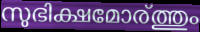
സുഭിക്ഷമോര്ത്തും